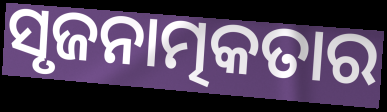
ସୃଜନାତ୍ମକତାର